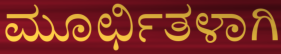
ಮೂರ್ಛಿತಳಾಗಿ